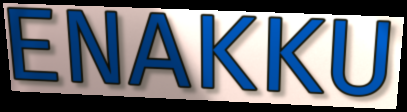
ENAKKU